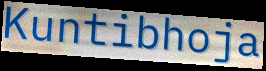
Kuntibhoja